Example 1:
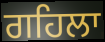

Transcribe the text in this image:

ਗਹਿਲਾ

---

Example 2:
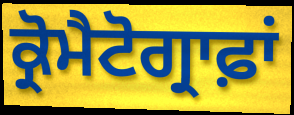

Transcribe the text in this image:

ਕ੍ਰੋਮੈਟੋਗ੍ਰਾਫ਼ਾਂ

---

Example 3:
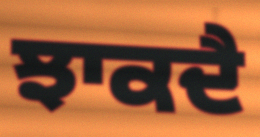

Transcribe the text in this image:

ਝਾਕਦੈ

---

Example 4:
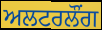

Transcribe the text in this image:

ਅਲਟਰਲੌਂਗ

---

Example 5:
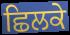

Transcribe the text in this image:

ਛਿਲਕੇ